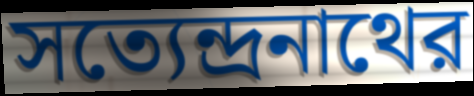
সত্যেন্দ্রনাথের